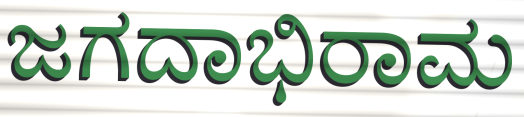
ಜಗದಾಭಿರಾಮ